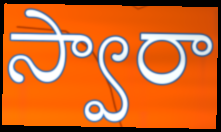
స్వారా